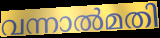
വന്നാൽമതി